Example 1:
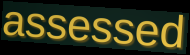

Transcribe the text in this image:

assessed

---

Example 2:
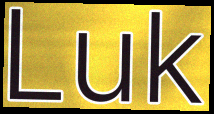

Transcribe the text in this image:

Luk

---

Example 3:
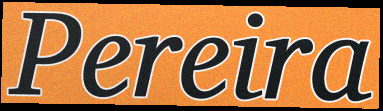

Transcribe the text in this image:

Pereira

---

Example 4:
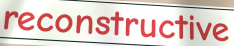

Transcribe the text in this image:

reconstructive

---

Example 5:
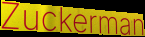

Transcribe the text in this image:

Zuckerman